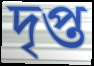
দৃপ্ত